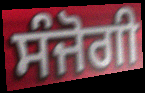
ਸੰਜੋਗੀ